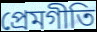
প্রেমগীতি